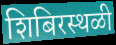
शिबिरस्थळी